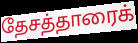
தேசத்தாரைக்